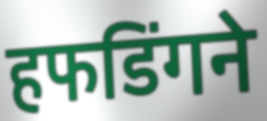
हफडिंगने